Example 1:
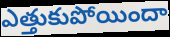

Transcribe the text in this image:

ఎత్తుకుపోయిందా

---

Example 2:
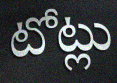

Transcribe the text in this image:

టోట్లు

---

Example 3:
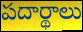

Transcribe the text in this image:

పదార్థాలు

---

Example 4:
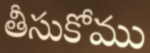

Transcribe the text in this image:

తీసుకోము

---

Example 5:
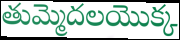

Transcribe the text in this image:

తుమ్మెదలయొక్క